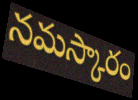
నమస్కారం